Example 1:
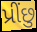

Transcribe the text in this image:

પ્રીંછુ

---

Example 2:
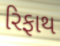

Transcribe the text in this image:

રિફાથ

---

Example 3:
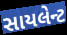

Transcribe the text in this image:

સાયલેન્ટ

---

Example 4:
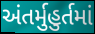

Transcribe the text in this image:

અંતર્મુહુર્તમાં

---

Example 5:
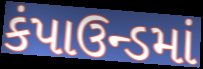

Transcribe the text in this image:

કંપાઉન્ડમાં